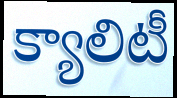
క్యాలిటీ